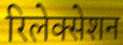
रिलेक्सेशन